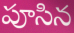
పూసిన